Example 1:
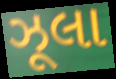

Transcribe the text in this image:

ઝૂલા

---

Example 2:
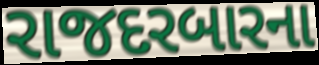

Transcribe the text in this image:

રાજદરબારના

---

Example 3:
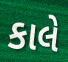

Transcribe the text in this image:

કાલે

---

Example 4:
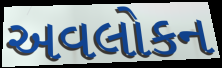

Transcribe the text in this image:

અવલોકન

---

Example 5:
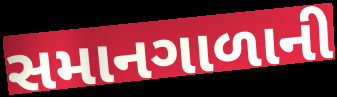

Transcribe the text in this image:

સમાનગાળાની